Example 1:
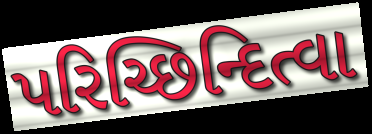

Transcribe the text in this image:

પરિચ્છિન્દિત્વા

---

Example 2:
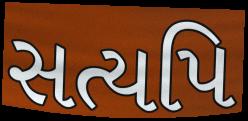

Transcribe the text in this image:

સત્યપિ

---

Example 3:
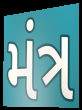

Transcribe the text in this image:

મંત્ર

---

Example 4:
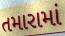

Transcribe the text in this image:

તમારામાં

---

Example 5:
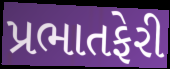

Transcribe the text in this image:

પ્રભાતફેરી